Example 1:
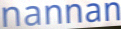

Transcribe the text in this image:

nannan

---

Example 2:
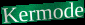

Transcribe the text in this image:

Kermode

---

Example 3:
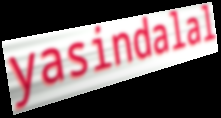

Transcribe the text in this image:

yasindalal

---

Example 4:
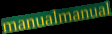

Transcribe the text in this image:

manualmanual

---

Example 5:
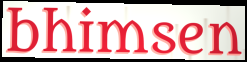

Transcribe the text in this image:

bhimsen